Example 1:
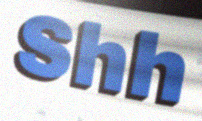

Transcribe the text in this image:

Shh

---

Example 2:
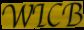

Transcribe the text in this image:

WICB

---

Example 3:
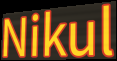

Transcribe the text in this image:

Nikul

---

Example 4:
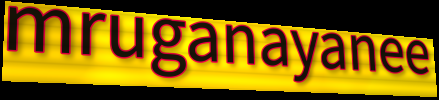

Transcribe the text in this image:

mruganayanee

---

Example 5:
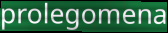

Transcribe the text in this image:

prolegomena